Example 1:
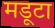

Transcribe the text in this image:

मडूटा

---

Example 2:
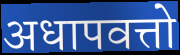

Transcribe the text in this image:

अधापवत्तो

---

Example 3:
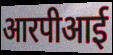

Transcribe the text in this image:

आरपीआई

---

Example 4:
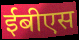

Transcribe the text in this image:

ईबीएस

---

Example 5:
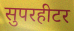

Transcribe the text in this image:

सुपरहीटर